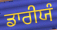
ਡਾਰੀਯੰ